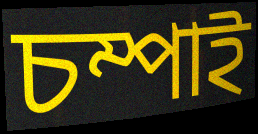
চম্পাই